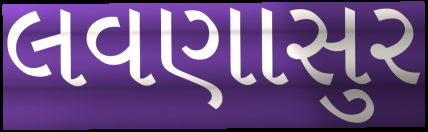
લવણાસુર